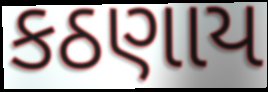
કઠણાય